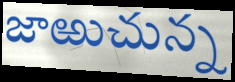
జాఱుచున్న